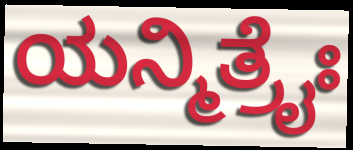
ಯನ್ಮಿತ್ರೈಃ